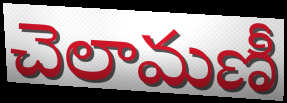
చెలామణీ